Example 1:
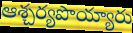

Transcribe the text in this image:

ఆశ్చర్యపొయ్యారు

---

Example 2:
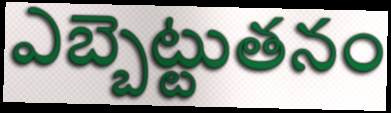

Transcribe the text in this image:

ఎబ్బెట్టుతనం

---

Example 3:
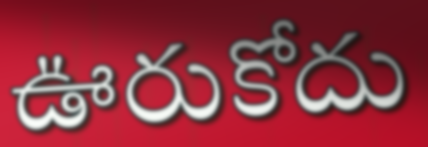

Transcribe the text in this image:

ఊరుకోదు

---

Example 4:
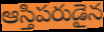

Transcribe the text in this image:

ఆస్తిపరుడైన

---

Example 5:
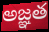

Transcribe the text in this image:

అజ్ఞత